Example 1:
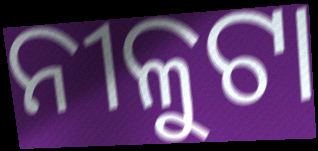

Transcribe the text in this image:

ନୀଳୁଟା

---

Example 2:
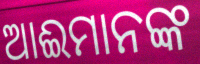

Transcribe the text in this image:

ଆଈମାନଙ୍କ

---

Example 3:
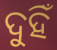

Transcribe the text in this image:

ଦୁହିଁ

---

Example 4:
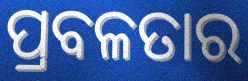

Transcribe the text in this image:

ପ୍ରବଳତାର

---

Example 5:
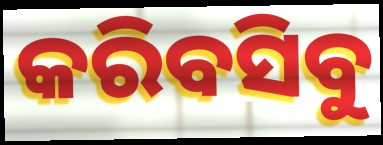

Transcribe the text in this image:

କରିବସିବୁ